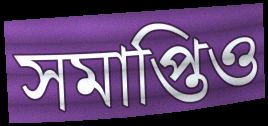
সমাপ্তিও